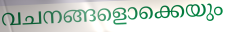
വചനങ്ങളൊക്കെയും